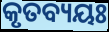
କୃତବ୍ୟୟଃ